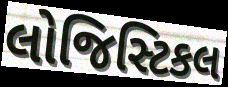
લોજિસ્ટિકલ